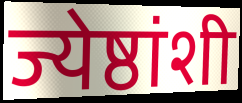
ज्येष्ठांशी